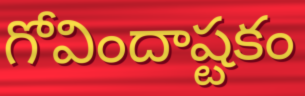
గోవిందాష్టకం